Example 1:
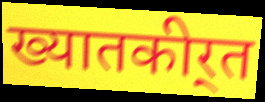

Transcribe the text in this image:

ख्यातकीर्त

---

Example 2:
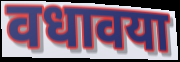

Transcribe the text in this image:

वधावया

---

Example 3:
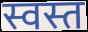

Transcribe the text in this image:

स्वस्त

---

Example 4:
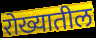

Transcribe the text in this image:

रोख्यातील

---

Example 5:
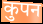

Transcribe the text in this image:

कुपन